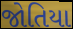
જોતિયા